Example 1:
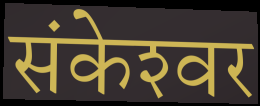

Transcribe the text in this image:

संकेश्वर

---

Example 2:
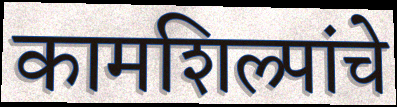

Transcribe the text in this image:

कामशिल्पांचे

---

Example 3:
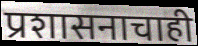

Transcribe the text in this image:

प्रशासनाचाही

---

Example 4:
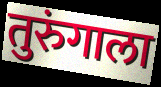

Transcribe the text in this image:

तुरुंगाला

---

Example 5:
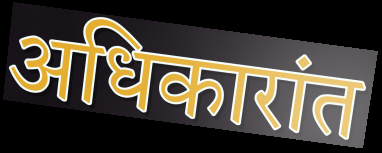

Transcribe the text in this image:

अधिकारांत